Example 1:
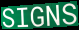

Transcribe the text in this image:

SIGNS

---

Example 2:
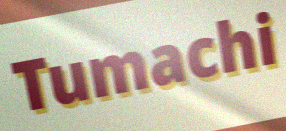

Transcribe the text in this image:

Tumachi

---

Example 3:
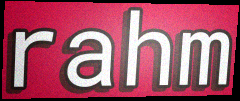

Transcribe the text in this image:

rahm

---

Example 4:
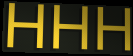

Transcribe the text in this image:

HHH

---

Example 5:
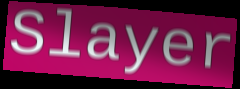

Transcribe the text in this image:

Slayer